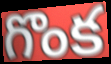
గొంక